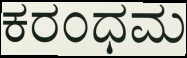
ಕರಂಧಮ